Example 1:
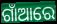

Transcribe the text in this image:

ଗାଁଆରେ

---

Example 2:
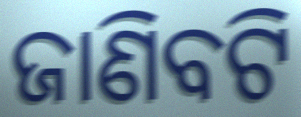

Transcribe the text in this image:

ଜାଣିବଟି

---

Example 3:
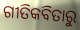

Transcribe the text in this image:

ଗୀତିକବିତାରୁ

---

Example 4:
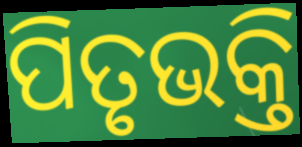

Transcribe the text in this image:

ପିତୃଭକ୍ତି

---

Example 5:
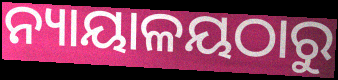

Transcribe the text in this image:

ନ୍ୟାୟାଳୟଠାରୁ